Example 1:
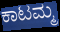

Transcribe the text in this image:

ಕಾಟಮ್ಮ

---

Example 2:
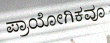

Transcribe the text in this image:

ಪ್ರಾಯೋಗಿಕವೂ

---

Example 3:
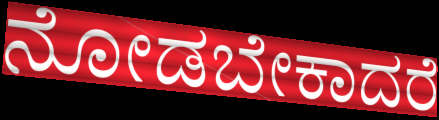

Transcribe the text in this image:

ನೋಡಬೇಕಾದರೆ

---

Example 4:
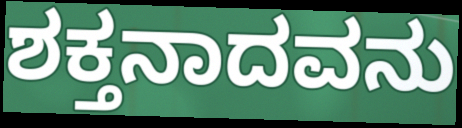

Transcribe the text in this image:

ಶಕ್ತನಾದವನು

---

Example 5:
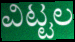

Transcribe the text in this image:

ವಿಟ್ಟಲ